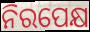
ନିରପେକ୍ଷ